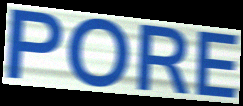
PORE